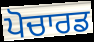
ਪੋਚਾਰਡ